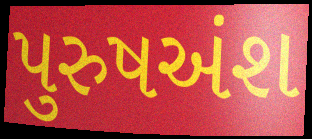
પુરુષઅંશ